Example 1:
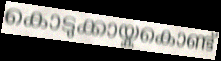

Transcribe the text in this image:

കൊടുക്കായ്കകൊണ്ട്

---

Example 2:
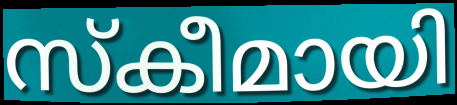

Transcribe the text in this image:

സ്കീമായി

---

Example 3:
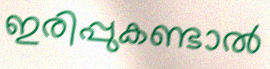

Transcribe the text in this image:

ഇരിപ്പുകണ്ടാൽ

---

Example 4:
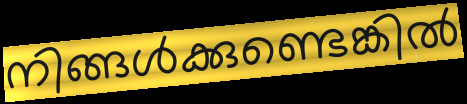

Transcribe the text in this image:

നിങ്ങൾക്കുണ്ടെങ്കിൽ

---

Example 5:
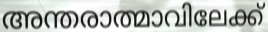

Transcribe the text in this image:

അന്തരാത്മാവിലേക്ക്